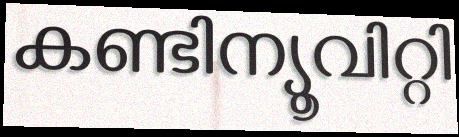
കണ്ടിന്യൂവിറ്റി